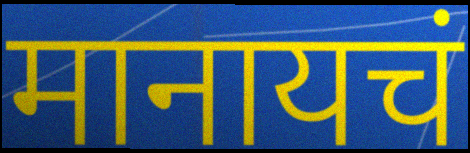
मानायचं